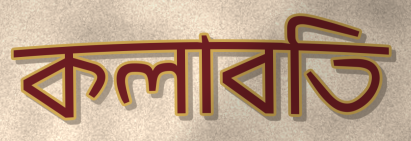
কলাবতি